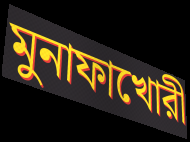
মুনাফাখোরী